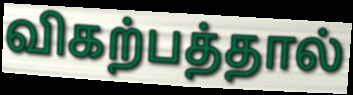
விகற்பத்தால்